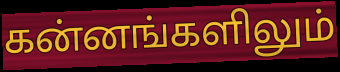
கன்னங்களிலும்